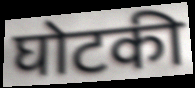
घोटकी